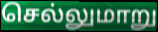
செல்லுமாறு